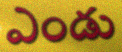
ఎండు